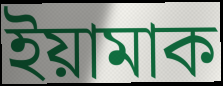
ইয়ামাক